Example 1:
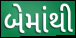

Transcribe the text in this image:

બેમાંથી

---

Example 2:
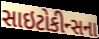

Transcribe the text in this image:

સાઇટોકીન્સના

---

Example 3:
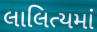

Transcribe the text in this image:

લાલિત્યમાં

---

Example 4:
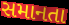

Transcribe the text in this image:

સમાનતા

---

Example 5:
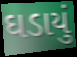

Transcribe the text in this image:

ઘડાયું